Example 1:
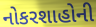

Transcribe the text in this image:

નોકરશાહોની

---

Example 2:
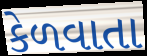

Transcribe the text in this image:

કેળવાતા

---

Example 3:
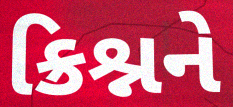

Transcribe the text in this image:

ક્રિશ્નને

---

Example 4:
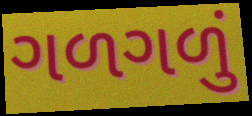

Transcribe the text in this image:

ગળગળું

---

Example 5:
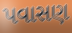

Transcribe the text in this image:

પવાસણ